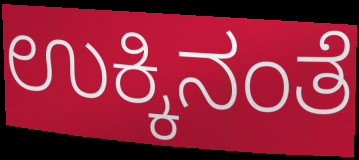
ಉಕ್ಕಿನಂತೆ